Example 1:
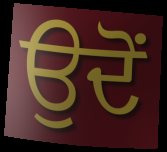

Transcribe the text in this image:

ਉਦੋੰ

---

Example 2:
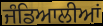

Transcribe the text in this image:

ਜੰਡਿਆਲੀਆਂ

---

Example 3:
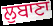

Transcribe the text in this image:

ਲੁਬਾਣਾ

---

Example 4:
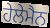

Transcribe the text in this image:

ਹੇਲੇਮੈਨ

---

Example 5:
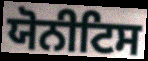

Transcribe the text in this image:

ਯੋਨੀਟਿਸ